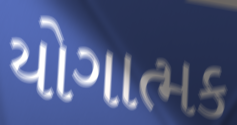
યોગાત્મક